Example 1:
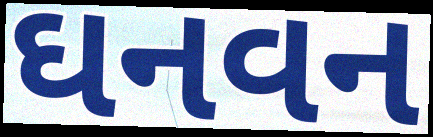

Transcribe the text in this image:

ઘનવન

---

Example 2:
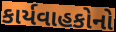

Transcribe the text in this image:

કાર્યવાહકોનો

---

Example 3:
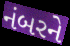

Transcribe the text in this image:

નંબરને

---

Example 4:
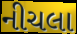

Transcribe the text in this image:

નીચલા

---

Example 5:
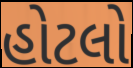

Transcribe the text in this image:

હોટલો